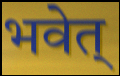
भवेत्